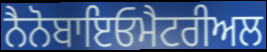
ਨੈਨੋਬਾਇਓਮੈਟਰੀਅਲ